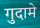
गुदामे